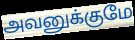
அவனுக்குமே